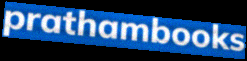
prathambooks